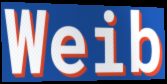
Weib